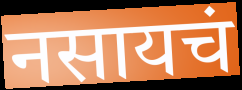
नसायचं